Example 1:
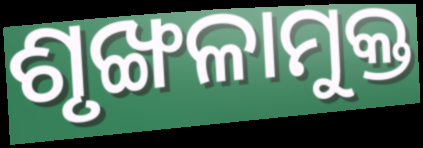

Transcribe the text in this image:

ଶୃଙ୍ଖଳାମୁକ୍ତ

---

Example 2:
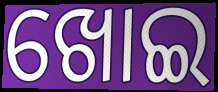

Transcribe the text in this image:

ଖୋଇ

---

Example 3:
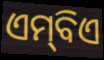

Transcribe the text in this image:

ଏମ୍‌ବିଏ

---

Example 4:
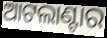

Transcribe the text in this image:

ଆଟଲାଣ୍ଟାର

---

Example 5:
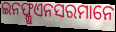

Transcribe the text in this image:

ଇନଫ୍ଳୁଏନସରମାନେ